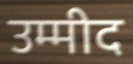
उम्‍मीद